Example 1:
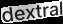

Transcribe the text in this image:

dextral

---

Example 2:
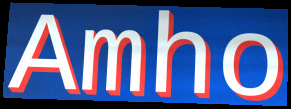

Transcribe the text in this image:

Amho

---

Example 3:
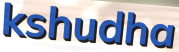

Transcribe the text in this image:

kshudha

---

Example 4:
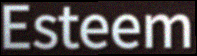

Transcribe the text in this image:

Esteem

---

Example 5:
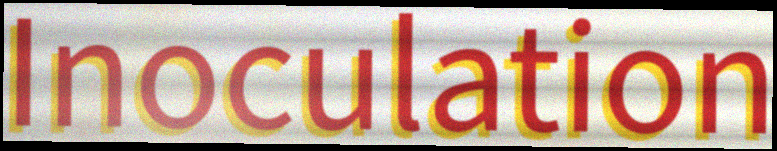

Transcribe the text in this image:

Inoculation